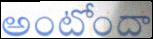
అంటోందా